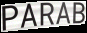
PARAB